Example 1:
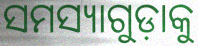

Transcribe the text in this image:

ସମସ୍ୟାଗୁଡ଼ାକୁ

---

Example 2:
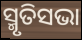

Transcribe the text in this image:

ସ୍ମୃତିସଭା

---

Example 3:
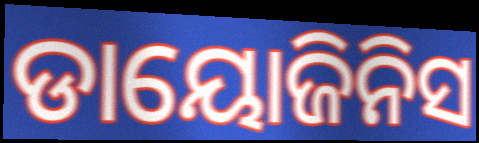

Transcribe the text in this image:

ଡାୟୋଜିନିସ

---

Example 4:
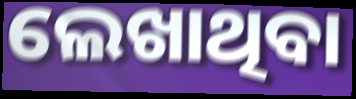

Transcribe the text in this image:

ଲେଖାଥିବା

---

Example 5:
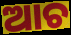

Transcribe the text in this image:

ଆଚ